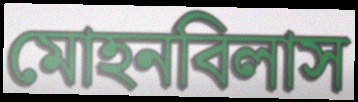
মোহনবিলাস